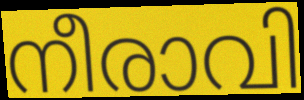
നീരാവി